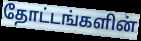
தோட்டங்களின்